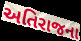
અતિરાજના